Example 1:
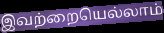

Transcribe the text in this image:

இவற்றையெல்லாம்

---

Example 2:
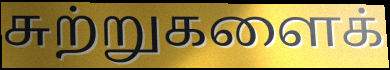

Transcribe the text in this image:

சுற்றுகளைக்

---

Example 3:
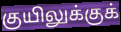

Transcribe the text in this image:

குயிலுக்குக்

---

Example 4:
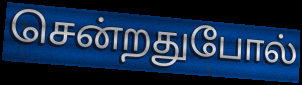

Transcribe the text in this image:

சென்றதுபோல்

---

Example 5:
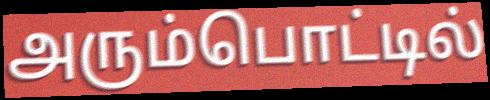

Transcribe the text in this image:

அரும்பொட்டில்